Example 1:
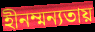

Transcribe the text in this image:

হীনম্মন্যতায়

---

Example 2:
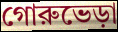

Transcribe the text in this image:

গোরুভেড়া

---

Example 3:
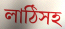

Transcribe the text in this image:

লাঠিসহ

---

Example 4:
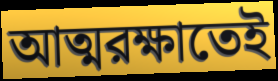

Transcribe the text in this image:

আত্মরক্ষাতেই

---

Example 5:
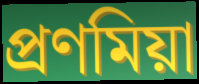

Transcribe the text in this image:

প্রণমিয়া